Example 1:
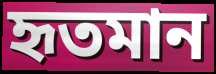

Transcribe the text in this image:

হৃতমান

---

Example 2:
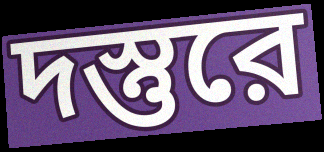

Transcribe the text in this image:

দস্তুরে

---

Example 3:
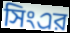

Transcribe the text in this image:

সিংএর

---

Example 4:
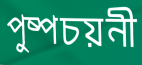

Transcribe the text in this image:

পুষ্পচয়নী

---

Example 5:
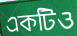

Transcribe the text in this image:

একটিও